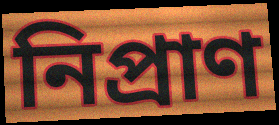
নিপ্রাণ